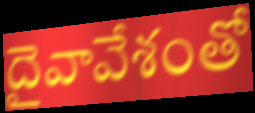
దైవావేశంతో